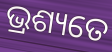
ଭ୍ରଶ୍ୟତେ